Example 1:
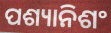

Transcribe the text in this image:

ପଶ୍ୟାନିଶଂ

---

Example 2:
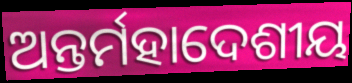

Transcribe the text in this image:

ଅନ୍ତର୍ମହାଦେଶୀୟ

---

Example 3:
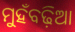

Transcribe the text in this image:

ମୁହଁବଢ଼ିଆ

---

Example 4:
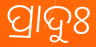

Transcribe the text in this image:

ପ୍ରାଦୁଃ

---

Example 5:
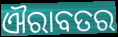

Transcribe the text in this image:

ଐରାବତର